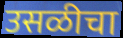
उसळीचा